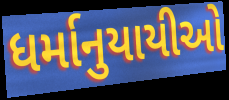
ધર્માનુયાયીઓ